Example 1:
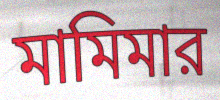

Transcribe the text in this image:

মামিমার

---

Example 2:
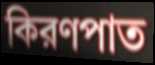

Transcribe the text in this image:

কিরণপাত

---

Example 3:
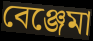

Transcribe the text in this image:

বেঞ্জেমা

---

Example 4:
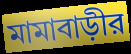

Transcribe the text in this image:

মামাবাড়ীর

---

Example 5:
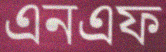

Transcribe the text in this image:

এনএফ